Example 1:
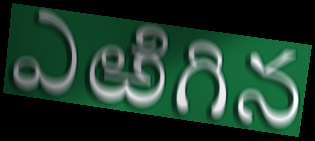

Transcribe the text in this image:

ఎఱిగిన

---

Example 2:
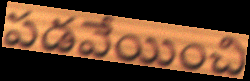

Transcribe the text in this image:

పడవేయించి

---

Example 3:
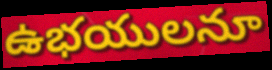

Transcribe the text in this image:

ఉభయులనూ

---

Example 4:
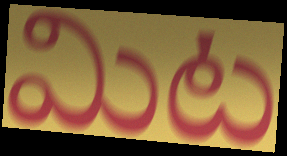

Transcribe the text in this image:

మిట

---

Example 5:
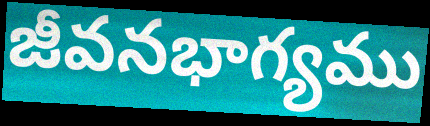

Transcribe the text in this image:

జీవనభాగ్యము